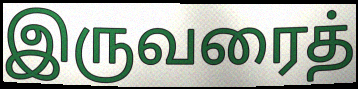
இருவரைத்